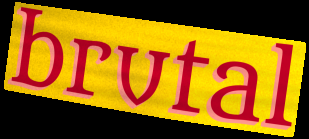
brutal